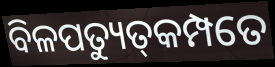
ବିଳପତ୍ୟୁତ୍‌କମ୍ପତେ